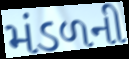
મંડળની